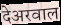
देअरवाल